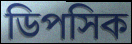
ডিপসিক